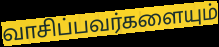
வாசிப்பவர்களையும்